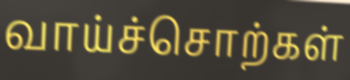
வாய்ச்சொற்கள்